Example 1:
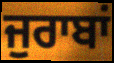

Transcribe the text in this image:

ਜੁਰਾਬਾਂ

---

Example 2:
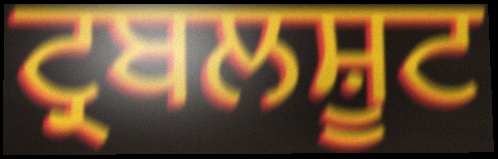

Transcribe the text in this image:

ਟ੍ਰਬਲਸ਼ੂਟ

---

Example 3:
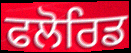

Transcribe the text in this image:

ਫਲੋਰਿਡ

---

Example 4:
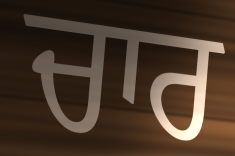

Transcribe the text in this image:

ਚਾਰ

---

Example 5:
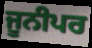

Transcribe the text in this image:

ਜੂਨੀਪਰ